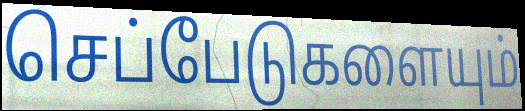
செப்பேடுகளையும்